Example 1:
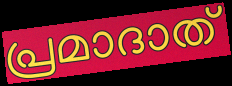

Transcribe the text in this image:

പ്രമാദാത്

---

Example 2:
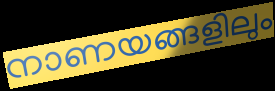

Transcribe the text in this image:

നാണയങ്ങളിലും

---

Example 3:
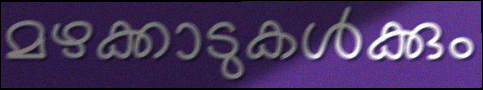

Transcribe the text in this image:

മഴക്കാടുകൾക്കും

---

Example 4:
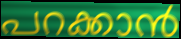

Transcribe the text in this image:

പറക്കാൻ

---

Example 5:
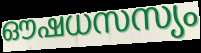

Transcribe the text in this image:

ഔഷധസസ്യം